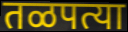
तळपत्या